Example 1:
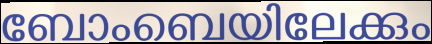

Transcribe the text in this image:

ബോംബെയിലേക്കും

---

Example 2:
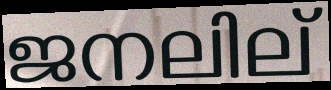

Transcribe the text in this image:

ജനലില്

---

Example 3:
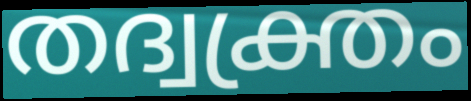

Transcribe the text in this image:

തദ്വക്ത്രം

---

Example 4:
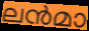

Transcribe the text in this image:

ലൻമാ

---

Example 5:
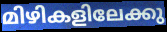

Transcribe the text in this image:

മിഴികളിലേക്കു